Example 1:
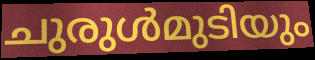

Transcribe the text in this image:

ചുരുൾമുടിയും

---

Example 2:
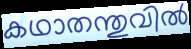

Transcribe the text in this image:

കഥാതന്തുവിൽ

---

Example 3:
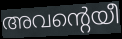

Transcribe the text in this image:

അവന്റെയീ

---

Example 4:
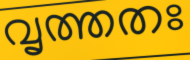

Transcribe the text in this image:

വൃത്തതഃ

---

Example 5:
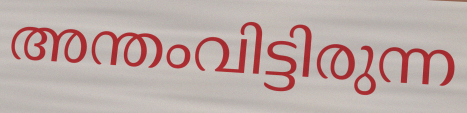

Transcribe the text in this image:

അന്തംവിട്ടിരുന്ന